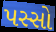
પસ્સો